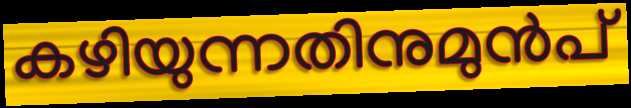
കഴിയുന്നതിനുമുൻപ്